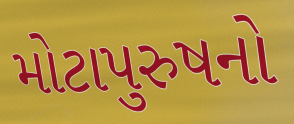
મોટાપુરુષનો